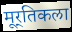
मूर्तिकला